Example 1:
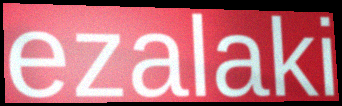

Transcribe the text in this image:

ezalaki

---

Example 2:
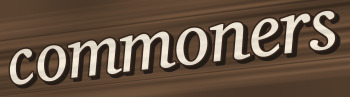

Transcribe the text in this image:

commoners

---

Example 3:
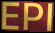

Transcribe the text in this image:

EPI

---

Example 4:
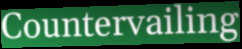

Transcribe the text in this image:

Countervailing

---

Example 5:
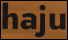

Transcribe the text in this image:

haju